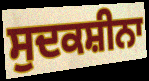
ਸੁਦਕਸ਼ੀਨਾ